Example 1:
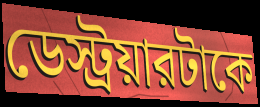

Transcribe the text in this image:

ডেস্ট্রয়ারটাকে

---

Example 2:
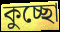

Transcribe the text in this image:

কুচ্ছো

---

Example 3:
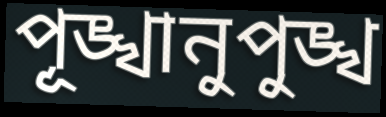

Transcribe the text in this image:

পূঙ্খানুপুঙ্খ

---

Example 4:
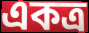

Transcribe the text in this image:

একত্র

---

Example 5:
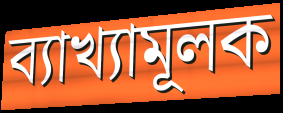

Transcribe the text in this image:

ব্যাখ্যামূলক